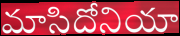
మాసిదోనియా